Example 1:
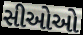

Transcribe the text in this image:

સીઓઓ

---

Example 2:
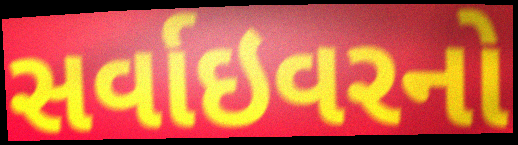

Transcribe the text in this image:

સર્વાઇવરનો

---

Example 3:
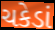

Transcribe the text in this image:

ચકેડાં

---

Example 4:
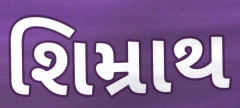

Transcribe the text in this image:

શિમ્રાથ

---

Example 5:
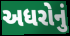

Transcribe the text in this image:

અધરોનું